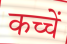
कच्चें